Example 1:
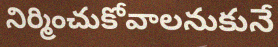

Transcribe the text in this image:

నిర్మించుకోవాలనుకునే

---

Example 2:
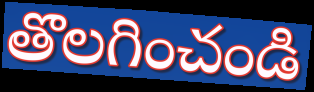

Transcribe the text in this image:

తొలగించండి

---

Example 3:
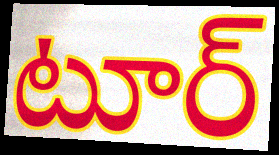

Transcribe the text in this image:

టూర్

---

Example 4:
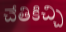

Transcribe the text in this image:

చేతికిచ్చి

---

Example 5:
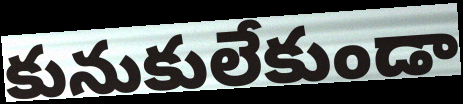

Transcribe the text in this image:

కునుకులేకుండా